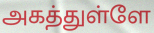
அகத்துள்ளே